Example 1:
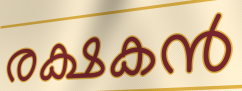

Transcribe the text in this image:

രക്ഷകൻ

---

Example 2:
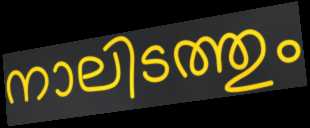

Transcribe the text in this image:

നാലിടത്തും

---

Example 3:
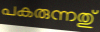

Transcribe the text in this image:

പകരുന്നതു്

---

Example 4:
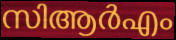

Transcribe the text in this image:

സിആർഎം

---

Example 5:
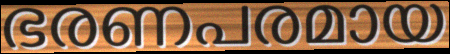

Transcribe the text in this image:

ഭരണപരമായ